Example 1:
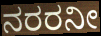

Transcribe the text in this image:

ನರರನೀ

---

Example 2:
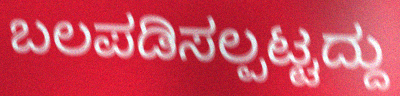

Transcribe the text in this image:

ಬಲಪಡಿಸಲ್ಪಟ್ಟದ್ದು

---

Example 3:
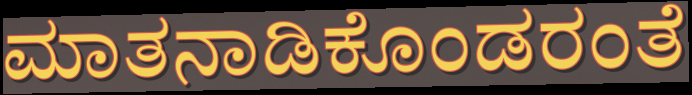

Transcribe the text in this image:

ಮಾತನಾಡಿಕೊಂಡರಂತೆ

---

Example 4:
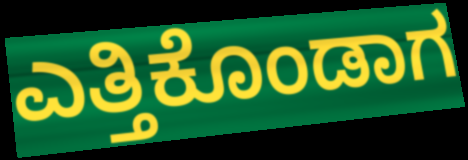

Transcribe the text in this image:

ಎತ್ತಿಕೊಂಡಾಗ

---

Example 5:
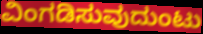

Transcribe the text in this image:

ವಿಂಗಡಿಸುವುದುಂಟು